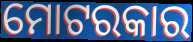
ମୋଟରକାର